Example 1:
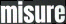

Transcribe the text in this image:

misure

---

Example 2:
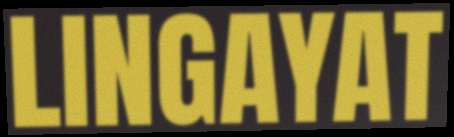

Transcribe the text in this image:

LINGAYAT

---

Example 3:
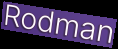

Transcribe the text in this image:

Rodman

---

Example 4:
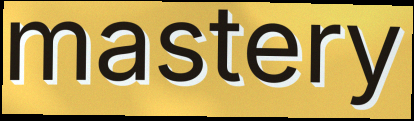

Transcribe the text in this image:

mastery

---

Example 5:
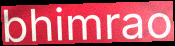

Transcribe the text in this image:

bhimrao